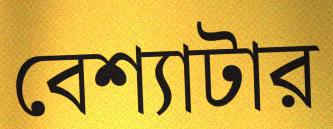
বেশ্যাটার